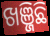
ଖଞ୍ଜିଛି